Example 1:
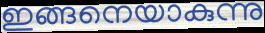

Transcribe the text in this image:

ഇങ്ങനെയാകുന്നു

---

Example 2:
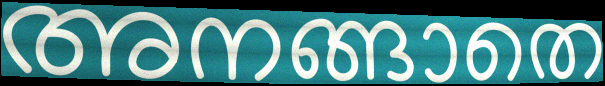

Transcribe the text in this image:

അനങ്ങാതെ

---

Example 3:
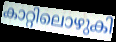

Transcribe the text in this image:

കാറ്റിലൊഴുകി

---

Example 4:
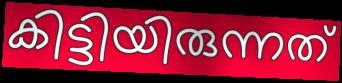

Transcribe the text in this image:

കിട്ടിയിരുന്നത്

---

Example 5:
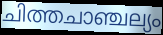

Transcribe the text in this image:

ചിത്തചാഞ്ചല്യം